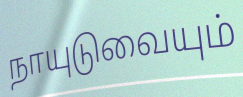
நாயுடுவையும்